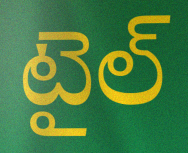
టైల్